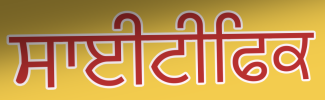
ਸਾਈਟੀਫਿਕ